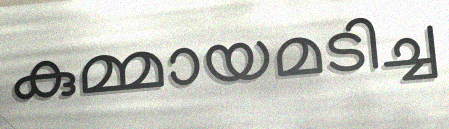
കുമ്മായമടിച്ച